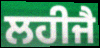
ਲਹੀਜੈ